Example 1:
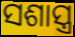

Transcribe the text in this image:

ସଶାସ୍ତ୍ର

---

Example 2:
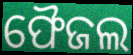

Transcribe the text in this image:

ଫୈଜଲ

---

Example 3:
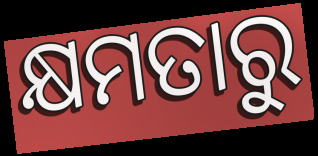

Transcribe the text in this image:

କ୍ଷମତାରୁ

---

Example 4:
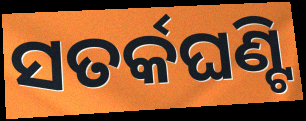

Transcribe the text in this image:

ସତର୍କଘଣ୍ଟି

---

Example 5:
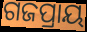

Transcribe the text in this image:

ଗଜପ୍ରାୟ